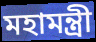
মহামন্ত্রী